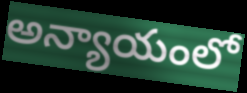
అన్యాయంలో